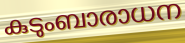
കുടുംബാരാധന